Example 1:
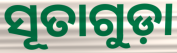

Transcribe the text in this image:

ସୂତାଗୁଡ଼ା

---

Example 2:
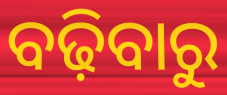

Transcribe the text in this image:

ବଢ଼ିବାରୁ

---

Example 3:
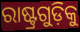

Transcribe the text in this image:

ରାଷ୍ଟ୍ରଗୁଡ଼ିକୁ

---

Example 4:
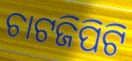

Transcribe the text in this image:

ଚାଟଜିପିଟି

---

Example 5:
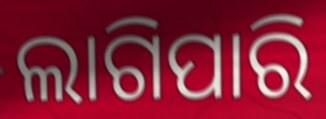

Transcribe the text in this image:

ଲାଗିପାରି